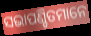
ସଭାପଣ୍ଡିତମାନେ